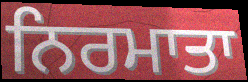
ਨਿਰਮਾਤਾ